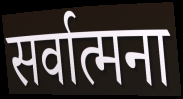
सर्वात्मना